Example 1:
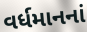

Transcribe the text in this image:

વર્ધમાનનાં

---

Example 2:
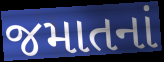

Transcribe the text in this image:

જમાતનાં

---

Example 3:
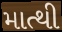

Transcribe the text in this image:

માત્થી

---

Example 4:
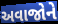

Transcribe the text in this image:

અવાજોને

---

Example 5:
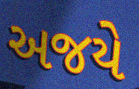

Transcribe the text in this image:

અજયે